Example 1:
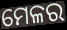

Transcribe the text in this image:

ମେଳର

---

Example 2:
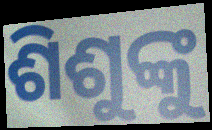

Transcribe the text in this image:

ଶିଶୁଙ୍କୁ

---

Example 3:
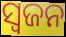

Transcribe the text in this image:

ସ୍ୱଜନ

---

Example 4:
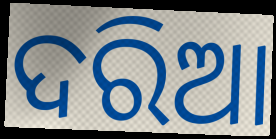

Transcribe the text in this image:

ଦରିଆ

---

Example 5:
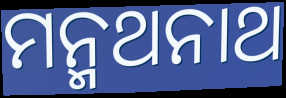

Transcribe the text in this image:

ମନ୍ମଥନାଥ